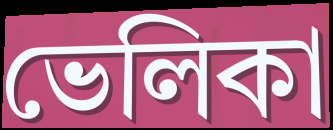
ভেলিকা